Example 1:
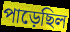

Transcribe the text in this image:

পাড়েছিল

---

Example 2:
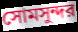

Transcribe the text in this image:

সোমসুন্দর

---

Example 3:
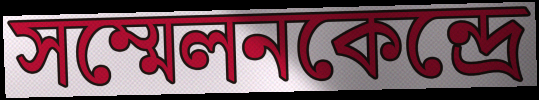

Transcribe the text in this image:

সম্মেলনকেন্দ্রে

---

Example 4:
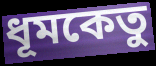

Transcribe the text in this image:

ধূমকেতু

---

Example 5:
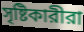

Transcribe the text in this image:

সৃষ্টিকারীরা